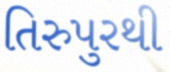
તિરુપુરથી